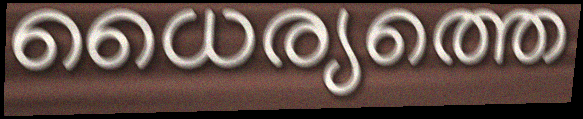
ധൈര്യത്തെ